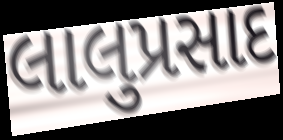
લાલુપ્રસાદ